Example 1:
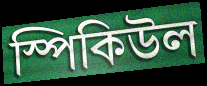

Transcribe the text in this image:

স্পিকিউল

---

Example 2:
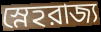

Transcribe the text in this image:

স্নেহরাজ্য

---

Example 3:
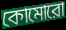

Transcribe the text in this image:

কোমোরো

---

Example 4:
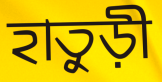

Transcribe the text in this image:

হাতুড়ী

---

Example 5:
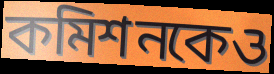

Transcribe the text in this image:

কমিশনকেও